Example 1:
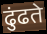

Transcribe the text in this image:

ढुंढते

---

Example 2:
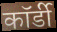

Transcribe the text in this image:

कॉर्डी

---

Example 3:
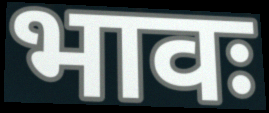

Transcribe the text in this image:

भावः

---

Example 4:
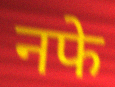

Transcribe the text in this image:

नफे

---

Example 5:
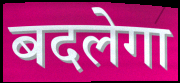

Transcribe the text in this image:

बदलेगा